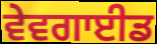
ਵੇਵਗਾਈਡ